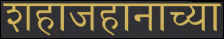
शहाजहानाच्या